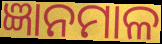
ଜ୍ଞାନମାଳ